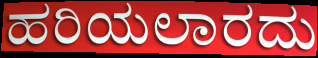
ಹರಿಯಲಾರದು